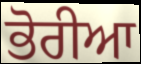
ਭੋਰੀਆ